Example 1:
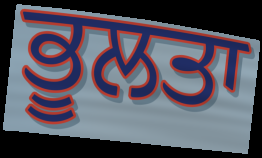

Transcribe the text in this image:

ਭੂਲਤਾ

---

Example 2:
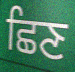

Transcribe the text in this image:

ਛਿਣ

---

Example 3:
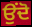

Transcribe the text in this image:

ਉਂਦੋ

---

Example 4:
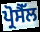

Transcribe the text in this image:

ਪ੍ਰੋਸੈੱਲ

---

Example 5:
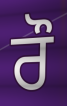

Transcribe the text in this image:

ਰੌ